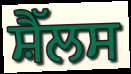
ਸ਼ੈੱਲਸ